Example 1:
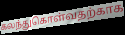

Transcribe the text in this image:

கலந்துகொள்வதற்காக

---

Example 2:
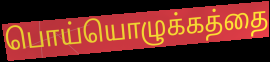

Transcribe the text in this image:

பொய்யொழுக்கத்தை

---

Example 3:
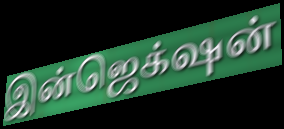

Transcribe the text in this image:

இன்ஜெக்‌ஷன்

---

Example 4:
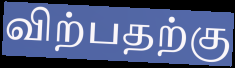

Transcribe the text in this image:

விற்பதற்கு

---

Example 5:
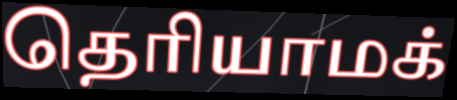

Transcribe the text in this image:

தெரியாமக்